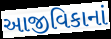
આજીવિકાનાં